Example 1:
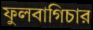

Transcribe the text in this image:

ফুলবাগিচার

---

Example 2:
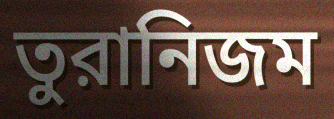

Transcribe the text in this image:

তুরানিজম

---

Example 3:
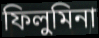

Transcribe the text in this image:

ফিলুমিনা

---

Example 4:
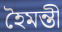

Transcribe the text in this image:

হৈমন্তী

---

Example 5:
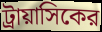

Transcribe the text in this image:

ট্রায়াসিকের